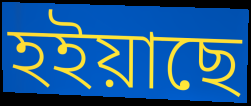
হইয়াছে